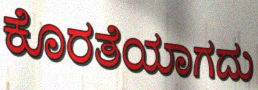
ಕೊರತೆಯಾಗದು